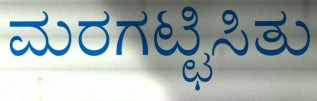
ಮರಗಟ್ಟಿಸಿತು